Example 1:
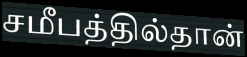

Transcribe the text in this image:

சமீபத்தில்தான்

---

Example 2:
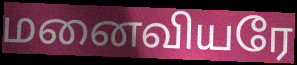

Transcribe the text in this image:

மனைவியரே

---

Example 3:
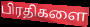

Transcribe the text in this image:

பிரதிகளை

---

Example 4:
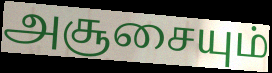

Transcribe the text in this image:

அசூசையும்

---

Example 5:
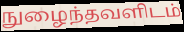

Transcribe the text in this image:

நுழைந்தவளிடம்